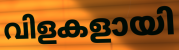
വിളകളായി